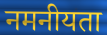
नमनीयता